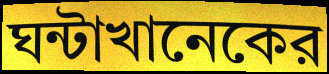
ঘন্টাখানেকের